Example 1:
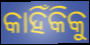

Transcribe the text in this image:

କାହିଁକିକୁ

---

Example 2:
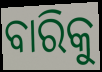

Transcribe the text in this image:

ବାରିକୁ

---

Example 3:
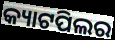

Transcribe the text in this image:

କ୍ୟାଟପିଲର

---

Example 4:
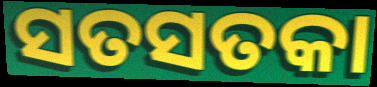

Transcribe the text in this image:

ସତସତକା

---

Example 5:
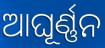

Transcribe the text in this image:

ଆଘୂର୍ଣ୍ଣନ